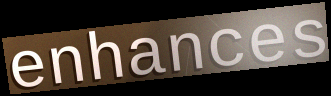
enhances